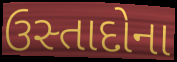
ઉસ્તાદોના